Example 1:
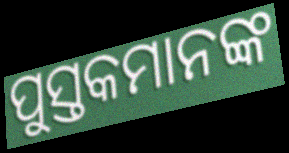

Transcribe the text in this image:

ପୁସ୍ତକମାନଙ୍କ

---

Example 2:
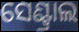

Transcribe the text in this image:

ସେଣ୍ଟ୍ରାଲ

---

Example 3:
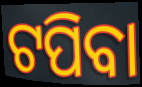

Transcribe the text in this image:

ଟପିବା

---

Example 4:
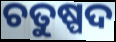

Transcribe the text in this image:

ଚତୁଷ୍ପଦ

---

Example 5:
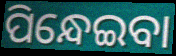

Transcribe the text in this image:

ପିନ୍ଧେଇବା